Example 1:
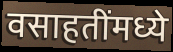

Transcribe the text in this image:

वसाहतींमध्ये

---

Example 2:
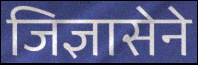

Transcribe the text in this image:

जिज्ञासेने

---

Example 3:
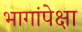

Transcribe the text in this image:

भागांपेक्षा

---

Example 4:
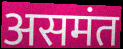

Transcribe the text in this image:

असमंत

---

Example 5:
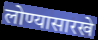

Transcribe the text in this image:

लोण्यासारखे